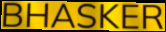
BHASKER